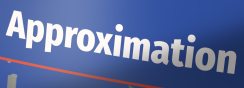
Approximation